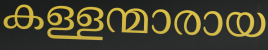
കള്ളന്മാരായ